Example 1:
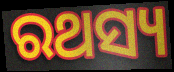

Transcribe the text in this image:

ରଥସ୍ୟ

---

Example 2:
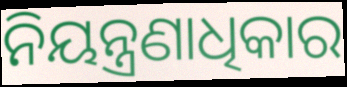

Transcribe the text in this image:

ନିୟନ୍ତ୍ରଣାଧିକାର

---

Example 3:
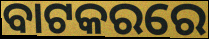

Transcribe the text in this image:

ବାଟକରରେ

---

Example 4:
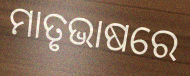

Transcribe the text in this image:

ମାତୃଭାଷରେ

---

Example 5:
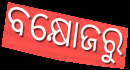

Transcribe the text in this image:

ବକ୍ଷୋଜରୁ